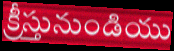
క్రీస్తునుండియు